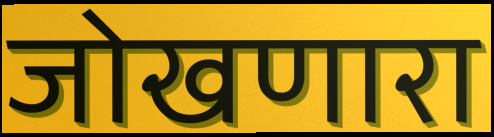
जोखणारा